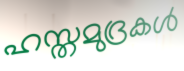
ഹസ്തമുദ്രകൾ